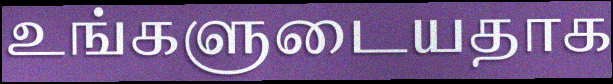
உங்களுடையதாக